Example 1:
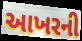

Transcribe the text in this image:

આખરની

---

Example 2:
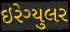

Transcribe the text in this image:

ઇરેગ્યુલર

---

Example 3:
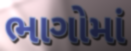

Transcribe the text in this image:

ભાગોમાં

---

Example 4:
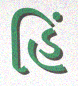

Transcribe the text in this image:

હિં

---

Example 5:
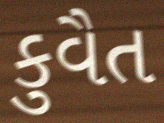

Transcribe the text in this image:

કુવૈત